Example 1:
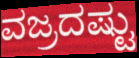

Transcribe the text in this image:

ವಜ್ರದಷ್ಟು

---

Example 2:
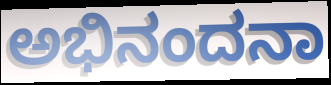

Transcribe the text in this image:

ಅಭಿನಂದನಾ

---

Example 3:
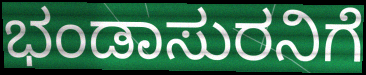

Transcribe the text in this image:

ಭಂಡಾಸುರನಿಗೆ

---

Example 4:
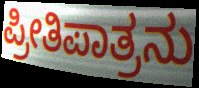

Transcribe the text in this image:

ಪ್ರೀತಿಪಾತ್ರನು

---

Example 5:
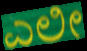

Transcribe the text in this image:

ಎಲೀ